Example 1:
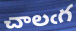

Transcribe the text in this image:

చాలఁగ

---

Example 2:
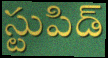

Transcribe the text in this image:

స్టుపిడ్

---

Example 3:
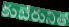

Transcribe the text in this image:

కుబేరునితో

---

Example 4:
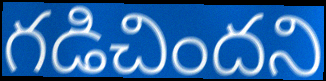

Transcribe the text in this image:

గడిచిందని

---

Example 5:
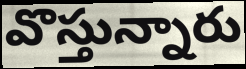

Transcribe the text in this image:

వొస్తున్నారు